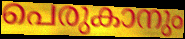
പെരുകാനും